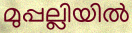
മുപ്പല്ലിയിൽ